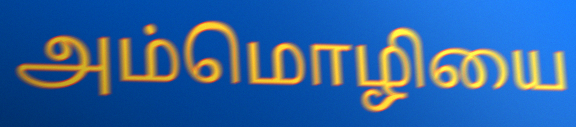
அம்மொழியை